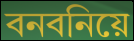
বনবনিয়ে